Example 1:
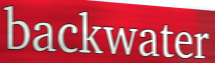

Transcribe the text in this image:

backwater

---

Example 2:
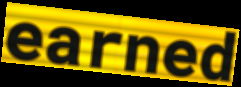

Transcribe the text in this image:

earned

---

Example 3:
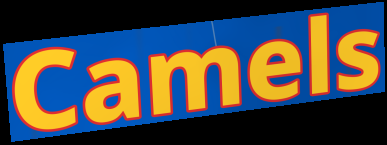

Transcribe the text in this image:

Camels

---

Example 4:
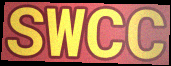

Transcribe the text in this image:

SWCC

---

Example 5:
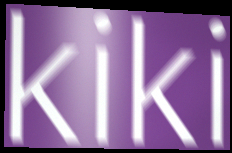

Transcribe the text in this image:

kiki